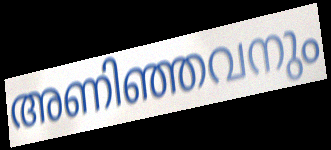
അണിഞ്ഞവനും